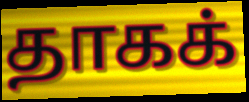
தாகக்